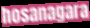
hosanagara